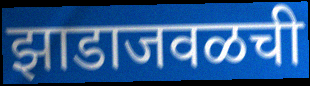
झाडाजवळची